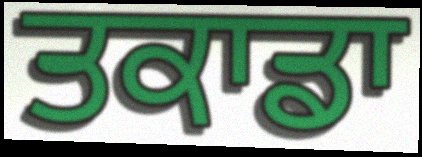
ਤਕਾਡਾ